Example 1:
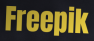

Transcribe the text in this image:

Freepik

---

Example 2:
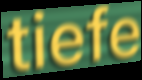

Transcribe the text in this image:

tiefe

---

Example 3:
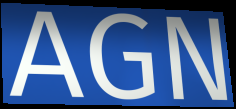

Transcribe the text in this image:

AGN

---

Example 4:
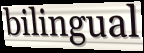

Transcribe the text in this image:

bilingual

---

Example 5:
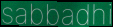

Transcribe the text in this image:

sabbadhi